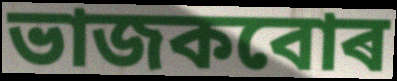
ভাজকবোৰ